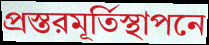
প্রস্তরমূর্তিস্থাপনে